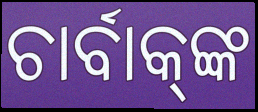
ଚାର୍ବାକ୍‌ଙ୍କ